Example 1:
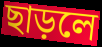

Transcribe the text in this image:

ছাড়লে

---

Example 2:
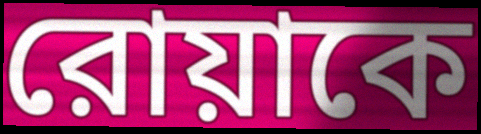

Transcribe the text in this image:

রোয়াকে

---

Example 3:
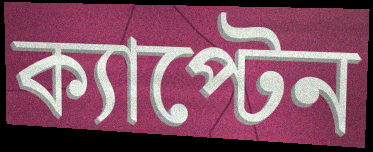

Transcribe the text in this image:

ক্যাপ্টেন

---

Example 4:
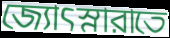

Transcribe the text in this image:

জ্যোৎস্নারাতে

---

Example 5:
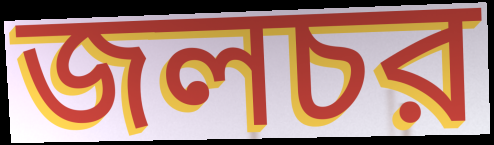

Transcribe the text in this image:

জলচর